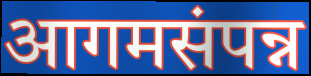
आगमसंपन्न